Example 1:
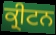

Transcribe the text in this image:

ਕ੍ਰੀਟਨ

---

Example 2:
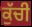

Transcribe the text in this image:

ਕੁੱਚੀ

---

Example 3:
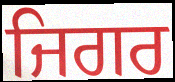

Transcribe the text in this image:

ਜਿਗਰ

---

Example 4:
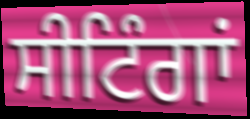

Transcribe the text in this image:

ਸੀਟਿੰਗਾਂ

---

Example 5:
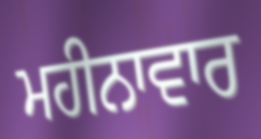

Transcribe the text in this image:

ਮਹੀਨਾਵਾਰ